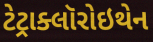
ટેટ્રાક્લૉરોઇથેન